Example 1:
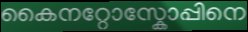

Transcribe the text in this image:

കൈനറ്റോസ്കോപ്പിനെ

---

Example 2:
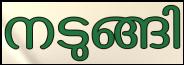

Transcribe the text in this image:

നടുങ്ങി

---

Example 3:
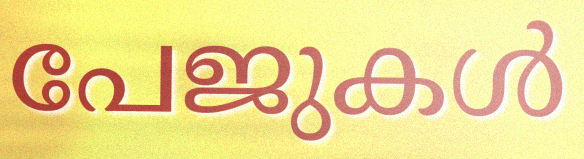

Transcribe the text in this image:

പേജുകൾ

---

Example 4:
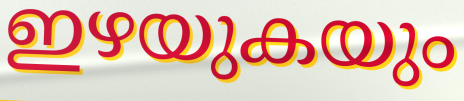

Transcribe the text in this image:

ഇഴയുകയും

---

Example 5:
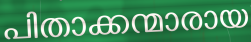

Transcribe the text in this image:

പിതാക്കന്മാരായ